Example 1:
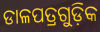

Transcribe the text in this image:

ଡାଳପତ୍ରଗୁଡ଼ିକ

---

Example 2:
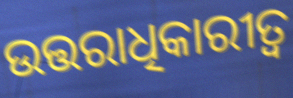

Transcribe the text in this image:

ଉତ୍ତରାଧିକାରୀତ୍ଵ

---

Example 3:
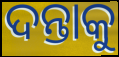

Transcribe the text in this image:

ଦନ୍ତାକୁ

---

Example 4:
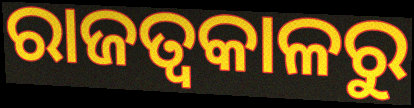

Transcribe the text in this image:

ରାଜତ୍ଵକାଳରୁ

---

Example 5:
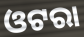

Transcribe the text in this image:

ଓଟରା